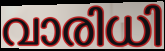
വാരിധി